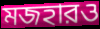
মজহারও